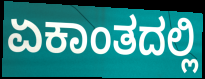
ಏಕಾಂತದಲ್ಲಿ